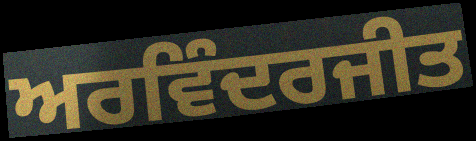
ਅਰਵਿੰਦਰਜੀਤ